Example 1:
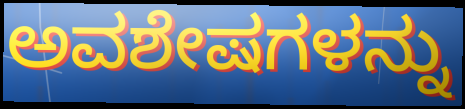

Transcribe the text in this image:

ಅವಶೇಷಗಳನ್ನು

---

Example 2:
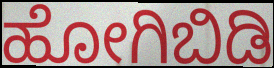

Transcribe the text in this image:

ಹೋಗಿಬಿಡಿ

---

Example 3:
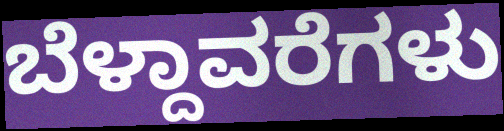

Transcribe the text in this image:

ಬೆಳ್ದಾವರೆಗಳು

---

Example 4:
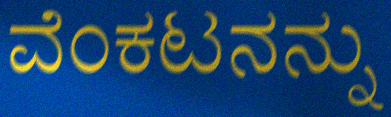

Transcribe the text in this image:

ವೆಂಕಟನನ್ನು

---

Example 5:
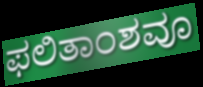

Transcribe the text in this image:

ಫಲಿತಾಂಶವೂ